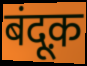
बंदूक़